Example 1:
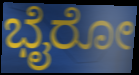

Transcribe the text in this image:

ಭೈರೋ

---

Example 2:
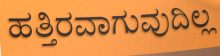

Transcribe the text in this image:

ಹತ್ತಿರವಾಗುವುದಿಲ್ಲ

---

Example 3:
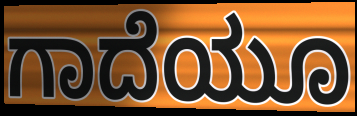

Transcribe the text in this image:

ಗಾದೆಯೂ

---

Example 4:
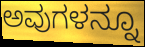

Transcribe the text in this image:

ಅವುಗಳನ್ನೂ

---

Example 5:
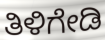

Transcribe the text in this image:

ತಿಳಿಗೇಡಿ